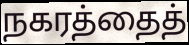
நகரத்தைத்